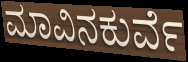
ಮಾವಿನಕುರ್ವೆ